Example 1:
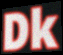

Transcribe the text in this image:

Dk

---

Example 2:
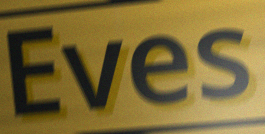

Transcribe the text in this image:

Eves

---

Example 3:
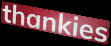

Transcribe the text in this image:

thankies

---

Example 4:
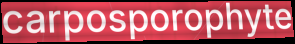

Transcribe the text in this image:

carposporophyte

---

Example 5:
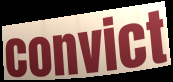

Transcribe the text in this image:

convict